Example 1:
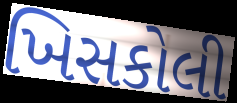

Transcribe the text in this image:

ખિસકોલી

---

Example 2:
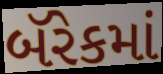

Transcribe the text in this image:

બૅરેકમાં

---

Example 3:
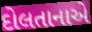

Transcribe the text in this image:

દોલતાનાએ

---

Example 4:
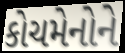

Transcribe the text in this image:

કોચમેનોને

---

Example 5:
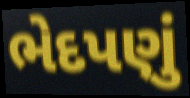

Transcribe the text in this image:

ભેદપણું